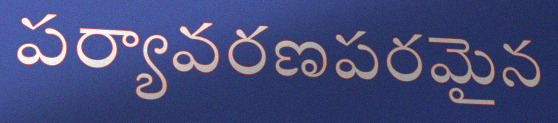
పర్యావరణపరమైన